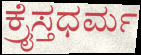
ಕ್ರೈಸ್ತಧರ್ಮ